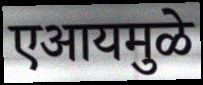
एआयमुळे